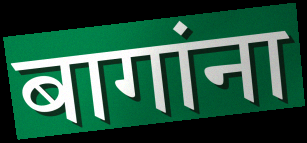
बागांना